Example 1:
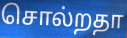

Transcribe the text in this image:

சொல்றதா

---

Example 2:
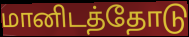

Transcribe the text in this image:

மானிடத்தோடு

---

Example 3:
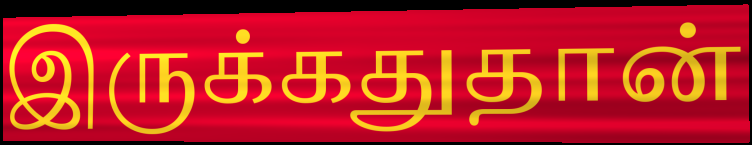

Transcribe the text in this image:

இருக்கதுதான்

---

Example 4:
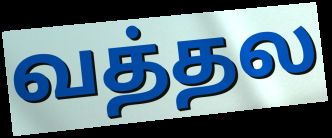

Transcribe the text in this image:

வத்தல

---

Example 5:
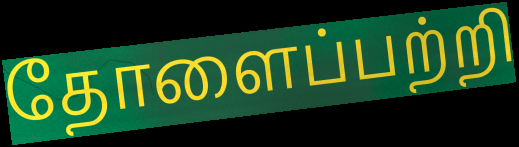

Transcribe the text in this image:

தோளைப்பற்றி